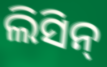
ଲିସିନ୍